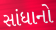
સાંધાનો